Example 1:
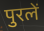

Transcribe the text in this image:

पुरलें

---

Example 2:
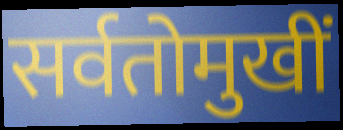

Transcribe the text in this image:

सर्वतोमुखीं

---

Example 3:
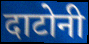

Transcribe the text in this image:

दाटोनी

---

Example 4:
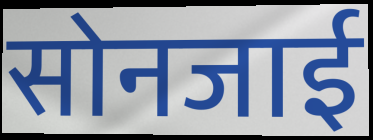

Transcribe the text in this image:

सोनजाई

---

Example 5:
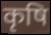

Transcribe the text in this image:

कृषि